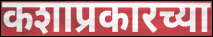
कशाप्रकारच्या